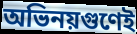
অভিনয়গুণেই